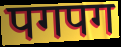
पगपग